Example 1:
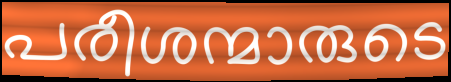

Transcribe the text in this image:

പരീശന്മാരുടെ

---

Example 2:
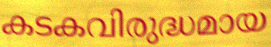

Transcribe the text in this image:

കടകവിരുദ്ധമായ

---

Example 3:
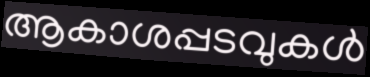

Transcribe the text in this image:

ആകാശപ്പടവുകൾ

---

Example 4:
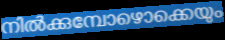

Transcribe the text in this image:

നിൽക്കുമ്പോഴൊക്കെയും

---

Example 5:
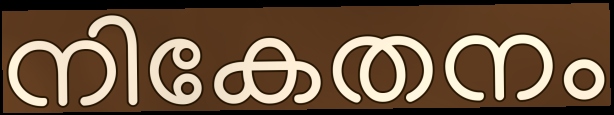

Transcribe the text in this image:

നികേതനം